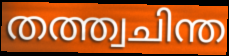
തത്ത്വചിന്ത